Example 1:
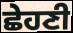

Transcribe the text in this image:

ਛੇਹਣੀ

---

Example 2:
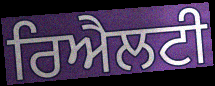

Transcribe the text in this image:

ਰਿਐਲਟੀ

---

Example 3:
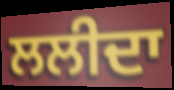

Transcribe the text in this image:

ਲਲੀਦਾ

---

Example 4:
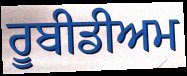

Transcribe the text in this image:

ਰੂਬੀਡੀਅਮ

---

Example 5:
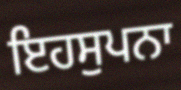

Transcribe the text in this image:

ਇਹਸੁਪਨਾ